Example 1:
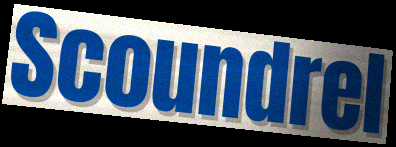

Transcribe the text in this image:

Scoundrel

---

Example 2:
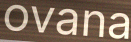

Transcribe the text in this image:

ovana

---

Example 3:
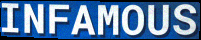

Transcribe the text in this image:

INFAMOUS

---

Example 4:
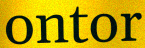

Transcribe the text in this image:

ontor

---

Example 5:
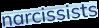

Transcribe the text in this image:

narcissists